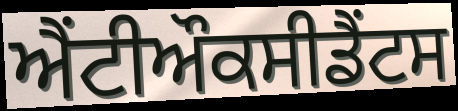
ਐਂਟੀਔਕਸੀਡੈਂਟਸ